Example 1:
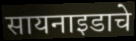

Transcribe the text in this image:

सायनाइडाचे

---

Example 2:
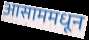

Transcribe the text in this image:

आसाममधून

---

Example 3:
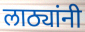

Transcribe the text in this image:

लाठ्यांनी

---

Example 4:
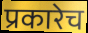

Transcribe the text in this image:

प्रकारेच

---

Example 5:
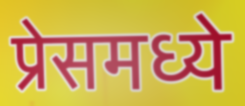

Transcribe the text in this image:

प्रेसमध्ये